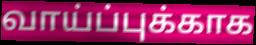
வாய்ப்புக்காக